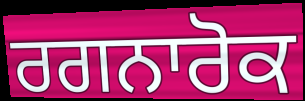
ਰਗਨਾਰੋਕ